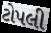
ટોપલી